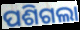
ପଶିଗଲା